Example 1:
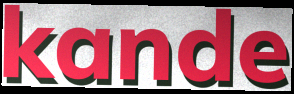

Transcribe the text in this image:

kande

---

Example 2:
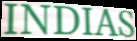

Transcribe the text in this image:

INDIAS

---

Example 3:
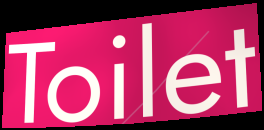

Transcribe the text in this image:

Toilet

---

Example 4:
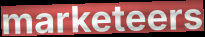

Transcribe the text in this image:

marketeers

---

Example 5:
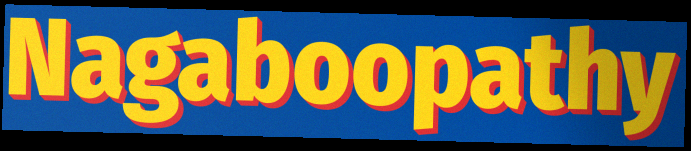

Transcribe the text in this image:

Nagaboopathy